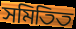
সমিতিত